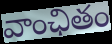
వాంఛితం